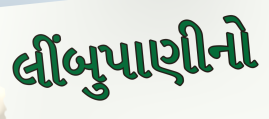
લીંબુપાણીનો